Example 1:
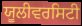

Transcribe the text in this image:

ਯੂਲੀਵਰਸਿਟੀ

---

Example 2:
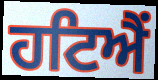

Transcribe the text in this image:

ਹਟਿਐਂ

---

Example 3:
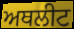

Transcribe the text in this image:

ਅਥਲੀਟ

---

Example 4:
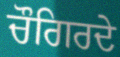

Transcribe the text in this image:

ਚੌਗਿਰਦੇ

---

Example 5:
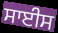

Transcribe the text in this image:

ਸਾਈਸ